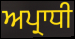
ਅਪ੍ਰਾਧੀ